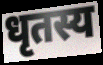
धृतस्य